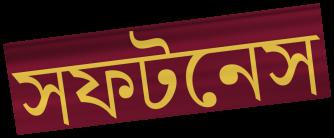
সফটনেস